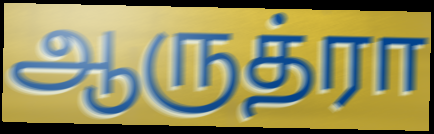
ஆருத்ரா